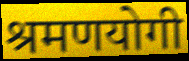
श्रमणयोगी